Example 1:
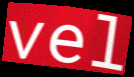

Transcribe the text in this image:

vel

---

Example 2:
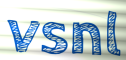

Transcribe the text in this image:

vsnl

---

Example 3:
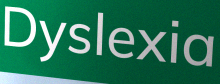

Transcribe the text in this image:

Dyslexia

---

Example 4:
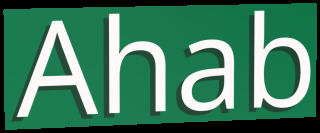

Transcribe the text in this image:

Ahab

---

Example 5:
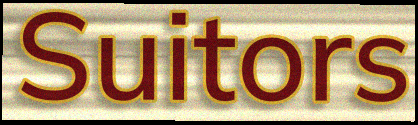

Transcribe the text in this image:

Suitors